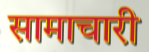
सामाचारी